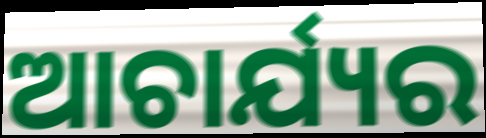
ଆଚାର୍ଯ୍ୟର